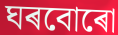
ঘৰবোৰো